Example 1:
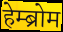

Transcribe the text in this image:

हेम्ब्रोम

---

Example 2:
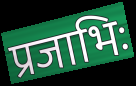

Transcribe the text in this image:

प्रजाभिः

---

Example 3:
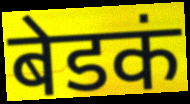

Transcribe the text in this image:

बेडकं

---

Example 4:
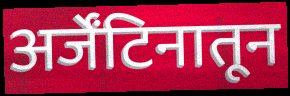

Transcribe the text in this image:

अर्जेंटिनातून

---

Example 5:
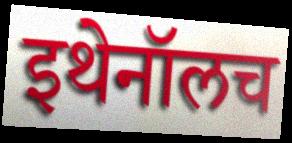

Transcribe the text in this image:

इथेनॉलच